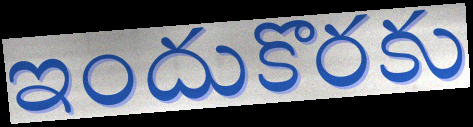
ఇందుకొరకు